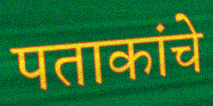
पताकांचे